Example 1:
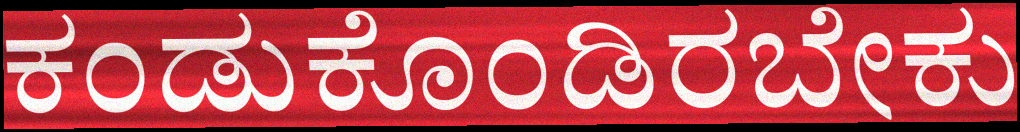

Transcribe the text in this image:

ಕಂಡುಕೊಂಡಿರಬೇಕು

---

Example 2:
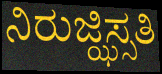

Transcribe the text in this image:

ನಿರುಜ್ಝಿಸ್ಸತಿ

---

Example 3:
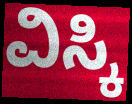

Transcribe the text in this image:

ವಿಸ್ಕಿ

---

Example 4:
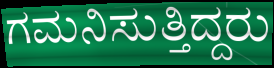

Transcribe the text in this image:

ಗಮನಿಸುತ್ತಿದ್ದರು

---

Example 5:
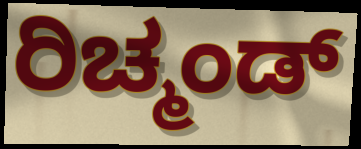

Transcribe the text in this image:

ರಿಚ್ಮಂಡ್